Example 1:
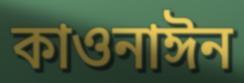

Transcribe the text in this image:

কাওনাঈন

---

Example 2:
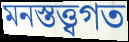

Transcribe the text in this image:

মনস্তত্ত্বগত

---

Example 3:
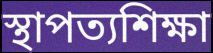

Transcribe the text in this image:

স্থাপত্যশিক্ষা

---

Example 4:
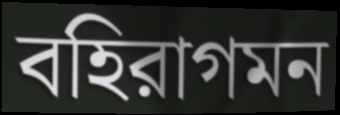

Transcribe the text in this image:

বহিরাগমন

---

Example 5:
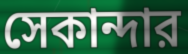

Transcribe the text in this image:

সেকান্দার